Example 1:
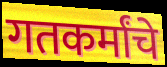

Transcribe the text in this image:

गतकर्मांचे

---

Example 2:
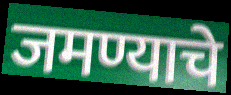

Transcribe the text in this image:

जमण्याचे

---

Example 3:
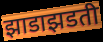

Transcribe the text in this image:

झाडाझडती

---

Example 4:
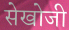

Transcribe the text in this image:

सेखोजी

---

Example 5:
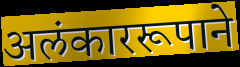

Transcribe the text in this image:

अलंकाररूपाने